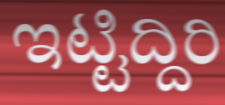
ಇಟ್ಟಿದ್ದಿರಿ